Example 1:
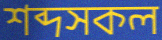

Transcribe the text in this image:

শব্দসকল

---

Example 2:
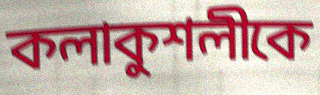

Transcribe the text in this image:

কলাকুশলীকে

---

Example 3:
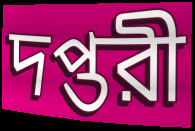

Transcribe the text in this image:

দপ্তরী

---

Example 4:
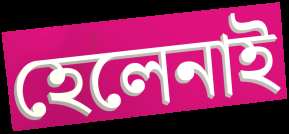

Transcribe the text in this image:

হেলেনাই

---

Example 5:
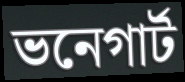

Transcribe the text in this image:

ভনেগার্ট